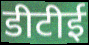
डीटीई